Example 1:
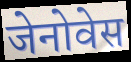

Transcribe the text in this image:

जेनोवेस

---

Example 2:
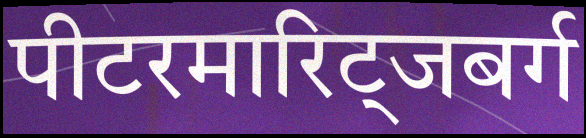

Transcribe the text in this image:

पीटरमारिट्जबर्ग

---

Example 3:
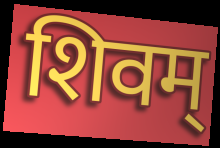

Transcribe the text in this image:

शिवम्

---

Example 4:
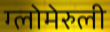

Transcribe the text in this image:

ग्लोमेरुली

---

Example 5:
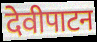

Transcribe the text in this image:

देवीपाटन